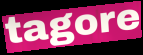
tagore